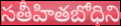
సతీహితబోధిని